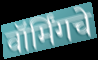
वॉर्मिंगचे